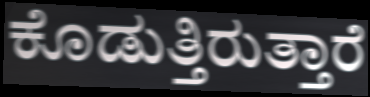
ಕೊಡುತ್ತಿರುತ್ತಾರೆ